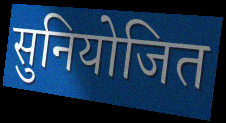
सुनियोजित